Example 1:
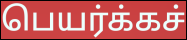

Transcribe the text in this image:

பெயர்க்கச்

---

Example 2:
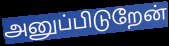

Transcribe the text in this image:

அனுப்பிடுறேன்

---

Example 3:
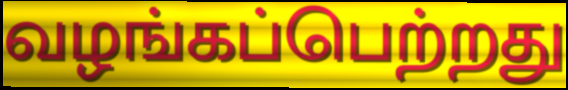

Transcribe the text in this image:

வழங்கப்பெற்றது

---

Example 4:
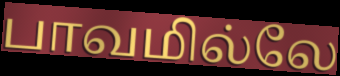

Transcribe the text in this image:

பாவமில்லே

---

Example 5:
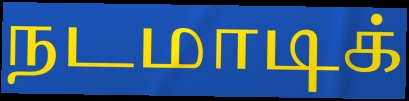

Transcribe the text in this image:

நடமாடிக்